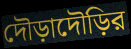
দৌড়াদৌড়ির